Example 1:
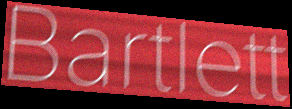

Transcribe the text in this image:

Bartlett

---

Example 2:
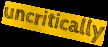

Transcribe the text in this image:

uncritically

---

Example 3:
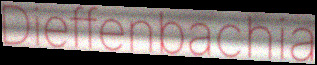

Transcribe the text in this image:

Dieffenbachia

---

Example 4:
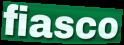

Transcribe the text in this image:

fiasco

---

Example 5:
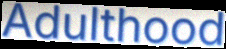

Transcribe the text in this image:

Adulthood